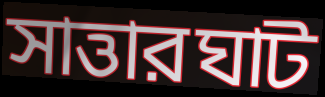
সাত্তারঘাট